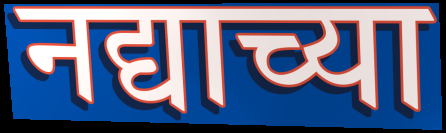
नद्याच्या